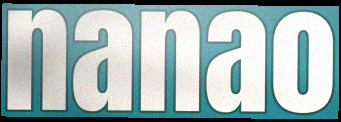
nanao